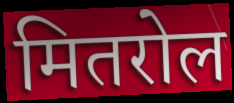
मितरोल